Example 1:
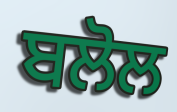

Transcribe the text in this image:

ਬਲੋਲ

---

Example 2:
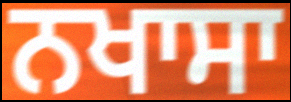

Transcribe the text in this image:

ਨਖਾਸਾ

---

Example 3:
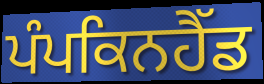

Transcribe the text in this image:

ਪੰਪਕਿਨਹੈੱਡ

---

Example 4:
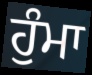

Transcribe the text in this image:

ਹੁੰਮਾ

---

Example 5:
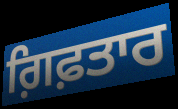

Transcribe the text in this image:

ਗ਼ਿਫ਼ਤਾਰ